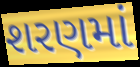
શરણમાં